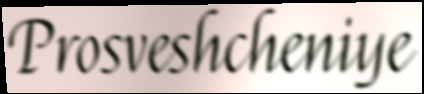
Prosveshcheniye